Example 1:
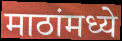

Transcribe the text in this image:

माठांमध्ये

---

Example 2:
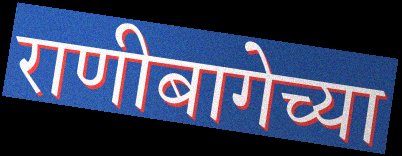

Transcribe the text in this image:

राणीबागेच्या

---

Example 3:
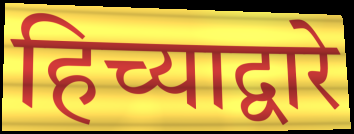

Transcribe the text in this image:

हिच्याद्वारे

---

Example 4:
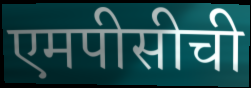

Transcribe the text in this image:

एमपीसीची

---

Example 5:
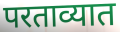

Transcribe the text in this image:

परताव्यात